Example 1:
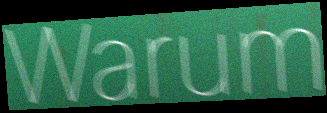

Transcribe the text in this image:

Warum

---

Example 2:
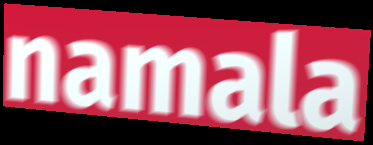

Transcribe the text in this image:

namala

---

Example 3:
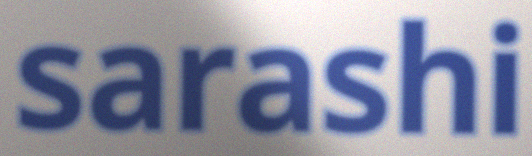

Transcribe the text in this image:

sarashi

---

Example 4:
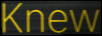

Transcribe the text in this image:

Knew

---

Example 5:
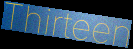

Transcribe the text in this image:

Thirteen